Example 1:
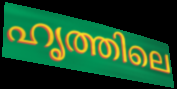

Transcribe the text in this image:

ഹൃത്തിലെ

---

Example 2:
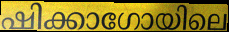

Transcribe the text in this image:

ഷിക്കാഗോയിലെ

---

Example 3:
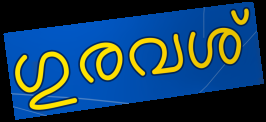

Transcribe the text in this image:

ഗുരവശ്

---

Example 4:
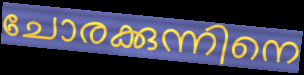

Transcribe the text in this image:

ചോരക്കുന്നിനെ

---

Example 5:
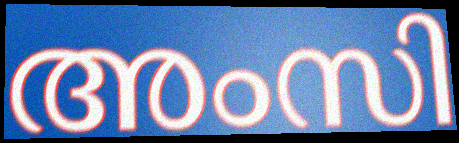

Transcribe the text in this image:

അംസി